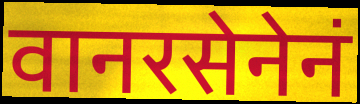
वानरसेनेनं